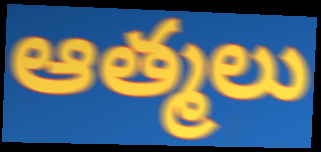
ఆత్మలు